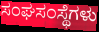
ಸಂಘಸಂಸ್ಥೆಗಳು